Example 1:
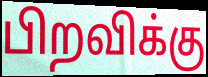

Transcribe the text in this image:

பிறவிக்கு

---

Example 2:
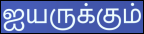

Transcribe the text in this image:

ஐயருக்கும்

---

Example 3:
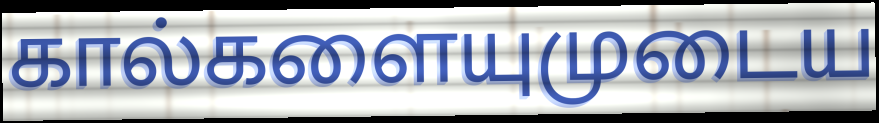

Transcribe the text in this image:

கால்களையுமுடைய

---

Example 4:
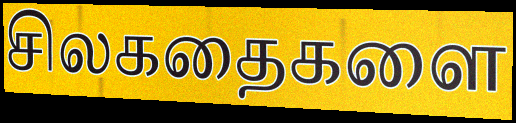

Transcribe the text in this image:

சிலகதைகளை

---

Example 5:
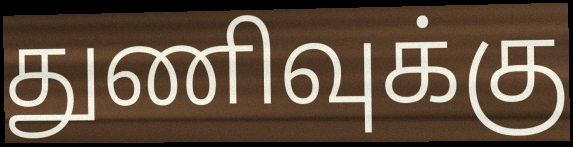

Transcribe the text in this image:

துணிவுக்கு